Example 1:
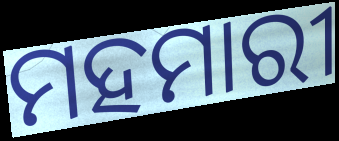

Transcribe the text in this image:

ମହମାରୀ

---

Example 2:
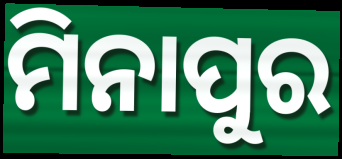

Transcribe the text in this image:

ମିନାପୁର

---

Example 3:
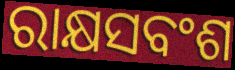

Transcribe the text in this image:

ରାକ୍ଷସବଂଶ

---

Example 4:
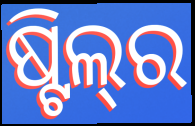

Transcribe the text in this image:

ଷ୍ଟିଲ୍‌ର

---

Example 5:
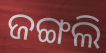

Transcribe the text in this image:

ଜଙ୍ଗଲି